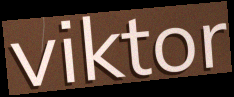
viktor